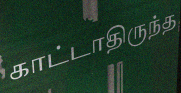
காட்டாதிருந்த